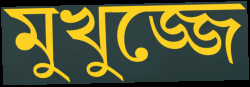
মুখুজ্জে